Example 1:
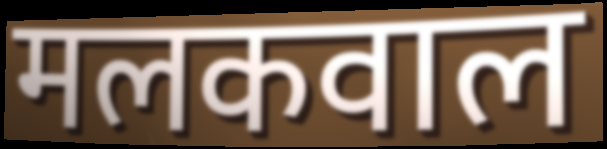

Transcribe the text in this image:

मलकवाल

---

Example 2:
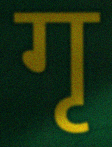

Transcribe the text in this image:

गृ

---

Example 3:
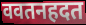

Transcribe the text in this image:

ववतनहदत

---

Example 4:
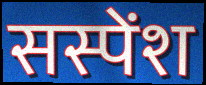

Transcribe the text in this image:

सस्पेंश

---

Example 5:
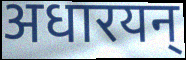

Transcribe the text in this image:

अधारयन्